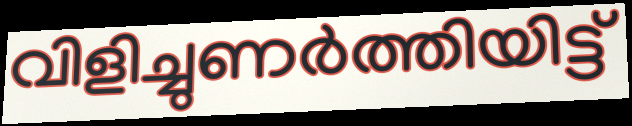
വിളിച്ചുണർത്തിയിട്ട്